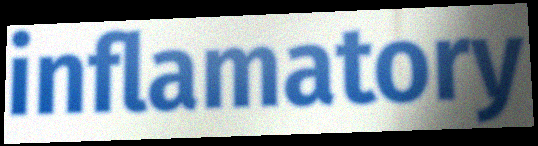
inflamatory